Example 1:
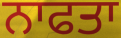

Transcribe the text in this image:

ਨਾਫਤਾ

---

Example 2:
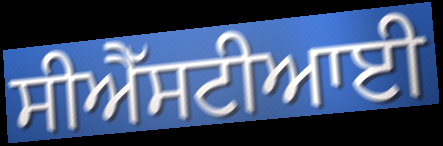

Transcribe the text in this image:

ਸੀਐੱਸਟੀਆਈ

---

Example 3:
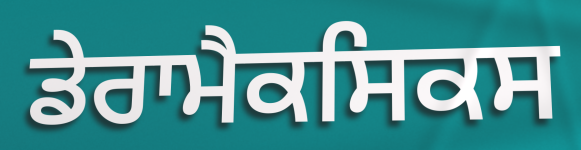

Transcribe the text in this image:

ਡੇਰਾਮੈਕਸਿਕਸ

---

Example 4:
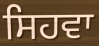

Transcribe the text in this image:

ਸਿਹਵਾ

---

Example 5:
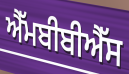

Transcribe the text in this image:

ਐੱਮਬੀਬੀਐੱਸ